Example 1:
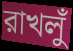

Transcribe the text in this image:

রাখলুঁ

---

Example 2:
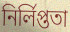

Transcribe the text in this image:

নির্লিপ্ততা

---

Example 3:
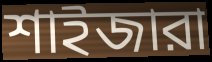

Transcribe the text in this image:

শাইজারা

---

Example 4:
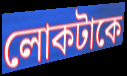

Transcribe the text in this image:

লোকটাকে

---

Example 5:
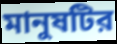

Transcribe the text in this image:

মানুষটির